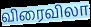
விரைவிலா